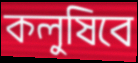
কলুষিবে